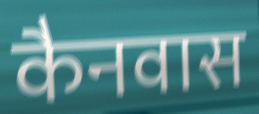
कैनवास